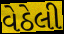
વેઠેલી